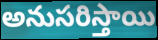
అనుసరిస్తాయి